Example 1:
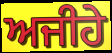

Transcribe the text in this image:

ਅਜੀਹੇ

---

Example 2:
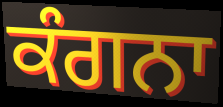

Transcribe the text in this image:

ਕੰਗਨਾ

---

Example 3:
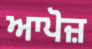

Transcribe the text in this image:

ਆਪੋਜ਼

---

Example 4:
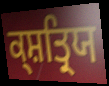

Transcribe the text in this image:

ਕ੍ਸ਼ਤ੍ਰਿਯ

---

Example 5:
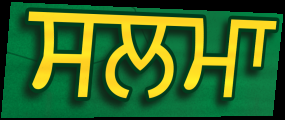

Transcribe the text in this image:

ਸਲਮਾ